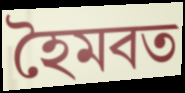
হৈমবত